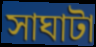
সাঘাটা